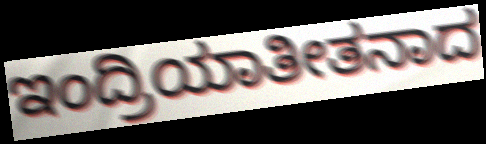
ಇಂದ್ರಿಯಾತೀತನಾದ